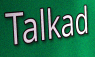
Talkad